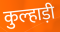
कुल्‍हाड़ी